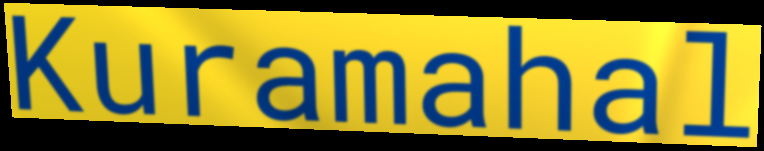
Kuramahal